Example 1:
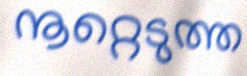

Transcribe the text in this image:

നൂറ്റെടുത്ത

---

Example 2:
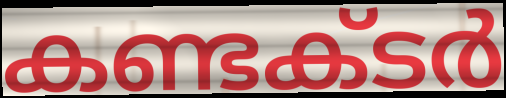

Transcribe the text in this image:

കണ്ടക്‌ടർ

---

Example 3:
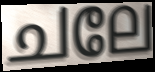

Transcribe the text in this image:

ചലേ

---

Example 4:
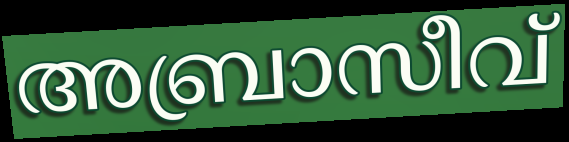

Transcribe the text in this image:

അബ്രാസീവ്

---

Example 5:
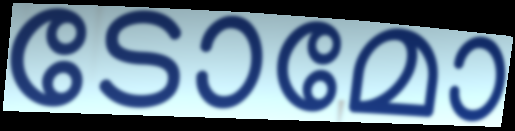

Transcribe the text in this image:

ടോമോ